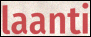
laanti